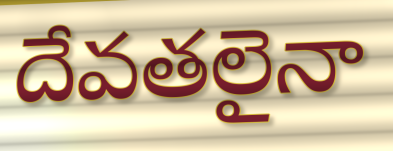
దేవతలైనా